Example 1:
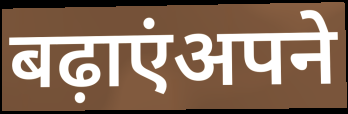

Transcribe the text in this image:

बढ़ाएंअपने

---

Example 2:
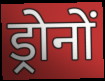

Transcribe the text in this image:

ड्रोनों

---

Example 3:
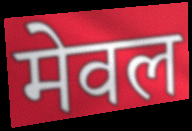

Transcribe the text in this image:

मेवल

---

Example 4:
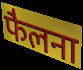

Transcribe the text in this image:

फैलना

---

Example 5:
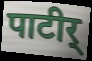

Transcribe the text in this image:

पाटीर्